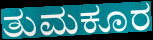
ತುಮಕೂರ